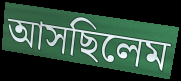
আসছিলেম